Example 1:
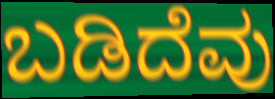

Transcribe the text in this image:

ಬಡಿದೆವು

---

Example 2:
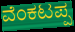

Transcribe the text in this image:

ವೆಂಕಟಪ್ಪ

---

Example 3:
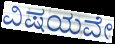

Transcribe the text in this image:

ವಿಷಯವೇ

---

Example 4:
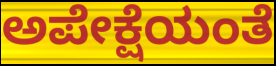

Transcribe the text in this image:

ಅಪೇಕ್ಷೆಯಂತೆ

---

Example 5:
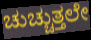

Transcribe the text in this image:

ಚುಚ್ಚುತ್ತಲೇ